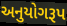
અનુયોગરૂપ